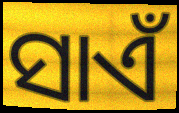
ସାଏଁ